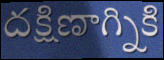
దక్షిణాగ్నికి